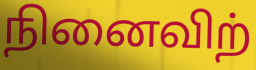
நினைவிற்